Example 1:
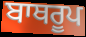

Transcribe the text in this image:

ਬਾਥਰੂਪ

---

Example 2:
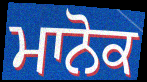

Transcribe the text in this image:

ਮਾਨੋਕ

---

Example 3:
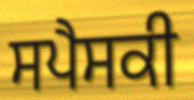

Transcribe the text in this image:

ਸਪੈਸਕੀ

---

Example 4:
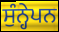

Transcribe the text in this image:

ਸੁੰਨ੍ਹੇਪਨ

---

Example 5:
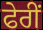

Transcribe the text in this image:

ਫੇਰੀਂ